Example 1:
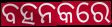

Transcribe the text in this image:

ବହନକରେ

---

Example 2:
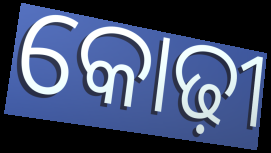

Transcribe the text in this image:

କୋଢ଼ୀ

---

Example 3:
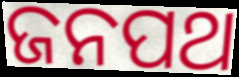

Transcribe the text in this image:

ଜନପଥ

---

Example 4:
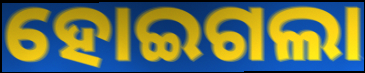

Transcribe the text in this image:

ହୋଇଗଲା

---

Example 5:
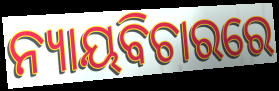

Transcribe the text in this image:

ନ୍ୟାୟବିଚାରରେ